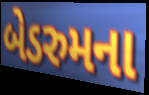
બેડરુમના